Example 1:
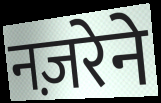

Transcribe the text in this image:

नज़रेने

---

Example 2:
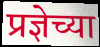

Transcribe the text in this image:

प्रज्ञेच्या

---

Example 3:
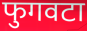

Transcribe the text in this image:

फुगवटा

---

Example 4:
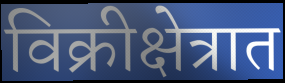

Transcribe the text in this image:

विक्रीक्षेत्रात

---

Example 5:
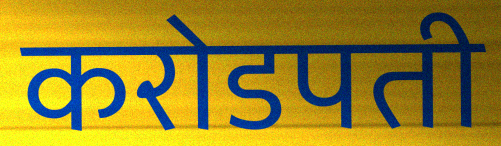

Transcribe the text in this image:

करोडपती